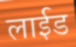
लाईड